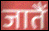
जातैं